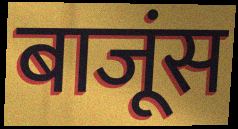
बाजूंस